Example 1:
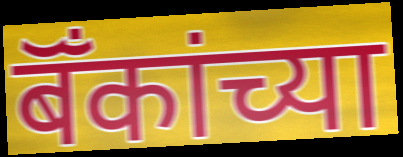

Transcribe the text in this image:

बॅँकांच्या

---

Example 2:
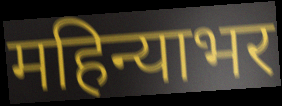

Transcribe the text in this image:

महिन्याभर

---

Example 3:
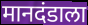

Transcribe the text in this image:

मानदंडाला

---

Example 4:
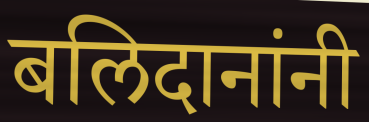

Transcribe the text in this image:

बलिदानांनी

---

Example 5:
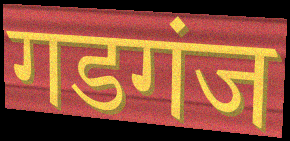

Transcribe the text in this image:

गडगंज